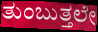
ತುಂಬುತ್ತಲೇ